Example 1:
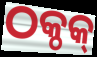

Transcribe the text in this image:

ଠକ୍ଠକ୍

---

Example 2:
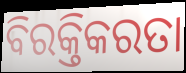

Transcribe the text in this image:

ବିରକ୍ତିକରତା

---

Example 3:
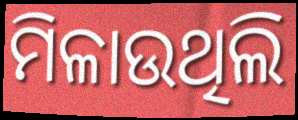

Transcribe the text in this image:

ମିଳାଉଥିଲି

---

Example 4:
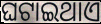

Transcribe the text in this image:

ଘଟାଇଥାଏ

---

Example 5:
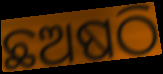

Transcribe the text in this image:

ଛଅଷଠି